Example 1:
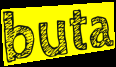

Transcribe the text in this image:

buta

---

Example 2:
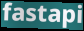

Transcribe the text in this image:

fastapi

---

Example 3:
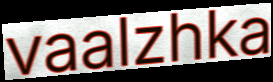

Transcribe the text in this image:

vaalzhka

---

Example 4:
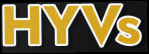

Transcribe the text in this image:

HYVs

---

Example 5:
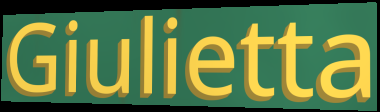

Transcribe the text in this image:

Giulietta